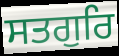
ਸਤਗੁਰਿ